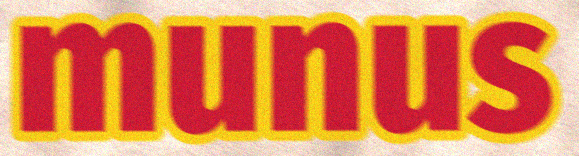
munus